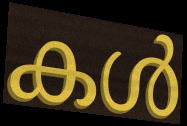
കൾ